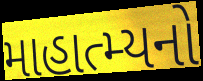
માહાત્મ્યનો